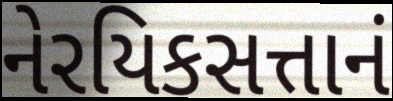
નેરયિકસત્તાનં